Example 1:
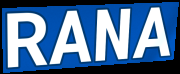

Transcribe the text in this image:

RANA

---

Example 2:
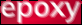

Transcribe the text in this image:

epoxy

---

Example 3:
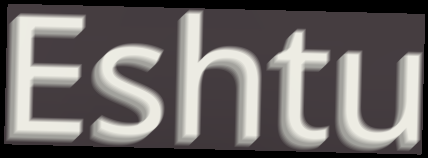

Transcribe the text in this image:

Eshtu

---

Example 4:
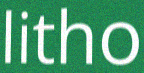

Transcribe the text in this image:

litho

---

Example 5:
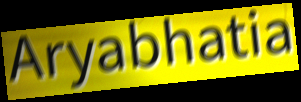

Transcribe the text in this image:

Aryabhatia